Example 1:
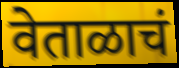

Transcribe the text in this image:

वेताळाचं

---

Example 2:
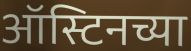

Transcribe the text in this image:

ऑस्टिनच्या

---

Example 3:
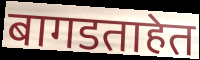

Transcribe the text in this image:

बागडताहेत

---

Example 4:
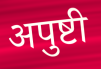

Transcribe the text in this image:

अपुष्टी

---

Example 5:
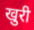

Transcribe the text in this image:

खुरी